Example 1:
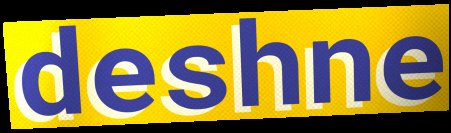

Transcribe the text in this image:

deshne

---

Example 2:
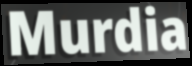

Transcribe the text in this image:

Murdia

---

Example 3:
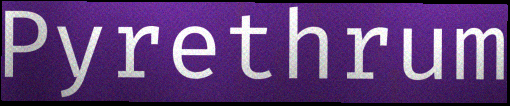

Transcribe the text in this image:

Pyrethrum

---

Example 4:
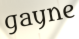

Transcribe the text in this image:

gayne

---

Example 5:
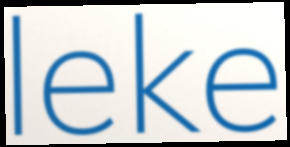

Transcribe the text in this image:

leke